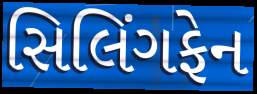
સિલિંગફેન